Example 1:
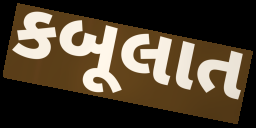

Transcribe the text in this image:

કબૂલાત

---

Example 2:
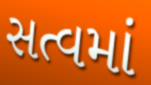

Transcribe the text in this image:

સત્વમાં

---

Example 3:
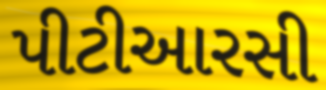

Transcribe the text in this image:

પીટીઆરસી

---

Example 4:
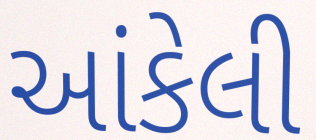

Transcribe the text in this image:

આંકેલી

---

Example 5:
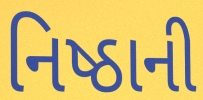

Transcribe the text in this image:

નિષ્ઠાની